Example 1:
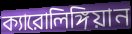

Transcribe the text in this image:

ক্যারোলিঙ্গিয়ান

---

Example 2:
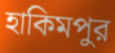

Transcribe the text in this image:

হাকিমপুর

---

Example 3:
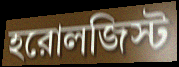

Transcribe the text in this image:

হরোলজিস্ট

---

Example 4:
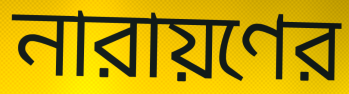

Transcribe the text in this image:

নারায়ণের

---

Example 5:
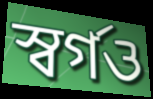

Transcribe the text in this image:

স্বর্গও